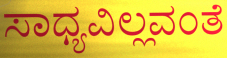
ಸಾಧ್ಯವಿಲ್ಲವಂತೆ